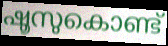
ഷൂസുകൊണ്ട്